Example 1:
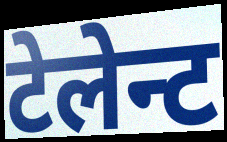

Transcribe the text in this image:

टेलेन्ट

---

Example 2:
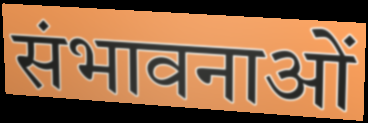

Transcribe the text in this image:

संभावनाओं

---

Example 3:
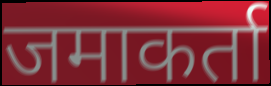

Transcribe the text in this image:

जमाकर्ता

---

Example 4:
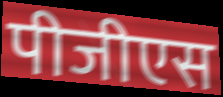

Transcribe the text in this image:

पीजीएस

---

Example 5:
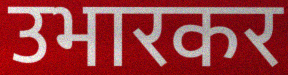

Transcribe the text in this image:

उभारकर